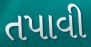
તપાવી